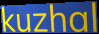
kuzhal